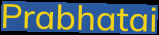
Prabhatai